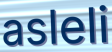
asleli